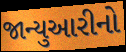
જાન્યુઆરીનો